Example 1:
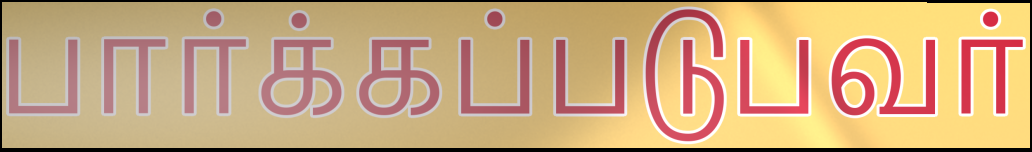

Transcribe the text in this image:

பார்க்கப்படுபவர்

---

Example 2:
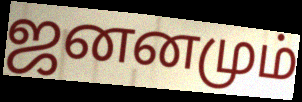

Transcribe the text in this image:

ஜனனமும்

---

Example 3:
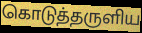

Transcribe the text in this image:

கொடுத்தருளிய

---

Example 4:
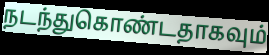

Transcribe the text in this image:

நடந்துகொண்டதாகவும்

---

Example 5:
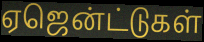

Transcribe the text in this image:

ஏஜென்ட்டுகள்